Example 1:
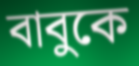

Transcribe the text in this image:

বাবুকে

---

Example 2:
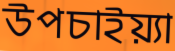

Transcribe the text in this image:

উপচাইয়্যা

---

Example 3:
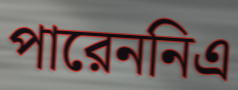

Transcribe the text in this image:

পারেননিএ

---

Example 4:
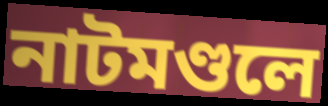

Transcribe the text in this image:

নাটমণ্ডলে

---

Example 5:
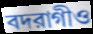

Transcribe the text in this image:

বদরাগীও